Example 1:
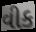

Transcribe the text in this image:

વીક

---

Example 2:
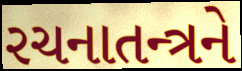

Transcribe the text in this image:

રચનાતન્ત્રને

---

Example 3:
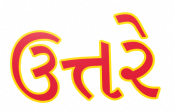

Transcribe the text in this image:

ઉત્તરે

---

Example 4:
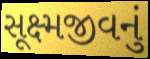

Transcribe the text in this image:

સૂક્ષ્મજીવનું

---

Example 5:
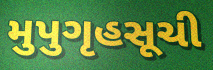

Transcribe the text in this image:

મુપુગૃહસૂચી